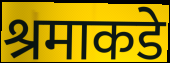
श्रमाकडे